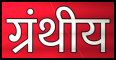
ग्रंथीय